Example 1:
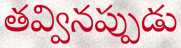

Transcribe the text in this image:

తవ్వినప్పుడు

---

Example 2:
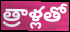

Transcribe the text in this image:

త్రాళ్లతో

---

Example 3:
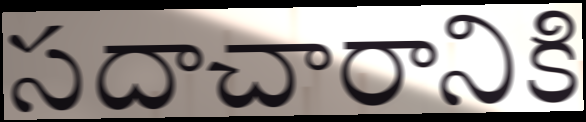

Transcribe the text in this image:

సదాచారానికి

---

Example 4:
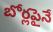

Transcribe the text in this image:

బోర్లపైనే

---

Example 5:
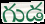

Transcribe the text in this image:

గుడ